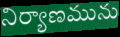
నిర్యాణమును